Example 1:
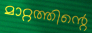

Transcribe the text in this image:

മാറ്റത്തിന്റെ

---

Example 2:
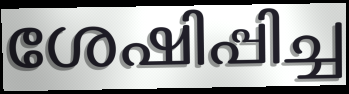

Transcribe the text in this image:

ശേഷിപ്പിച്ച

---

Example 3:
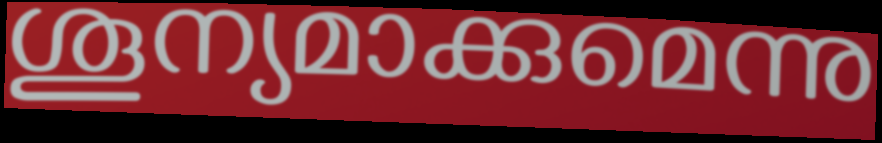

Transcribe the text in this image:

ശൂന്യമാക്കുമെന്നു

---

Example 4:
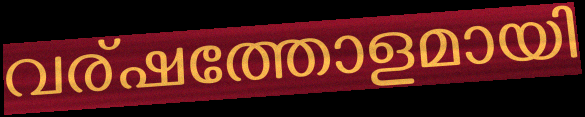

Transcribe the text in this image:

വര്ഷത്തോളമായി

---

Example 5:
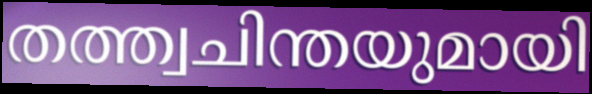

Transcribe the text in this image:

തത്ത്വചിന്തയുമായി